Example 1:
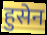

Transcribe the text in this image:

हुसेन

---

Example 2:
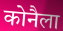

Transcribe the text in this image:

कोनैला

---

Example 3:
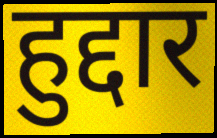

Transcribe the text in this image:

हुद्दार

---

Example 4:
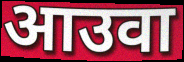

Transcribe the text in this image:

आउवा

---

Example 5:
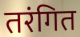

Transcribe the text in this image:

तरंगित